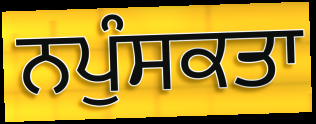
ਨਪੁੰਸਕਤਾ